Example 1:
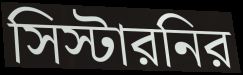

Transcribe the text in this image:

সিস্টারনির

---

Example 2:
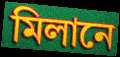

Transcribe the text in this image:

মিলানে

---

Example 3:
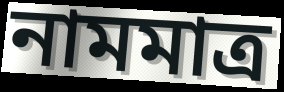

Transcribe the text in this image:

নামমাত্র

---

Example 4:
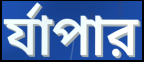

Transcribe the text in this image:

র্যাপার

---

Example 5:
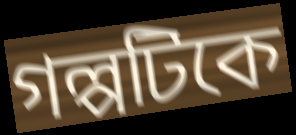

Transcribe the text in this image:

গল্পটিকে